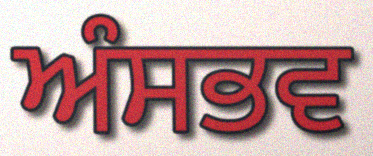
ਅੰਸਭਵ